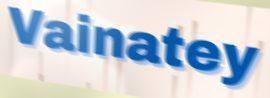
Vainatey